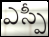
ఎస్పీ